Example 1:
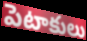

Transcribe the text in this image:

పెటాకులు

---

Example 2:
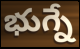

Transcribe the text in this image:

భుగ్నే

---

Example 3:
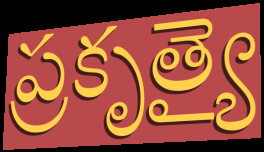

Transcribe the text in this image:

ప్రకృత్యై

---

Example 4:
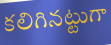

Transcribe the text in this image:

కలిగినట్టుగా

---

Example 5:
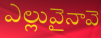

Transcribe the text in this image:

ఎల్లువైనావె